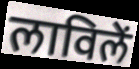
लाविलें